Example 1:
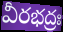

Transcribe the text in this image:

వీరభద్రః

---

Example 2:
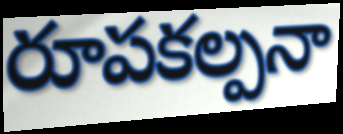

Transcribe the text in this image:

రూపకల్పనా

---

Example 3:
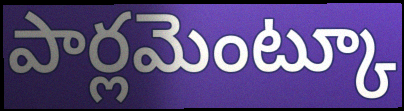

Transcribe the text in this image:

పార్లమెంట్కూ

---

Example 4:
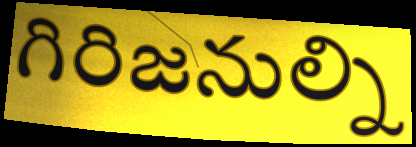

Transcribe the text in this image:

గిరిజనుల్ని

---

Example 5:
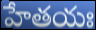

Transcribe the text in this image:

హేతయః